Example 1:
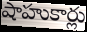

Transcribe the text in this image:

షాహుకార్లు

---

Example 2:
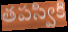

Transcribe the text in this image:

తపస్వికి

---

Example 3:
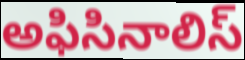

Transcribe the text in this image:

అఫిసినాలిస్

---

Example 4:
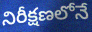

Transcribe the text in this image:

నిరీక్షణలోనే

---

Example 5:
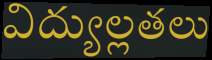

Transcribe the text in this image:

విద్యుల్లతలు